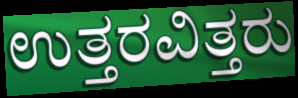
ಉತ್ತರವಿತ್ತರು